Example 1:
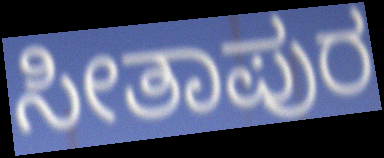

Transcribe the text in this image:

ಸೀತಾಪುರ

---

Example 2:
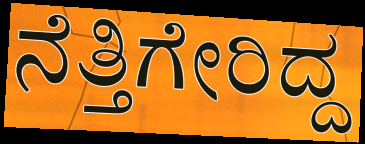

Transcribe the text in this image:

ನೆತ್ತಿಗೇರಿದ್ದ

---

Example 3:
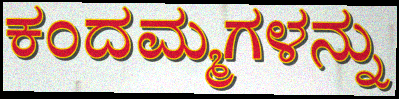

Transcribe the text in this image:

ಕಂದಮ್ಮಗಳನ್ನು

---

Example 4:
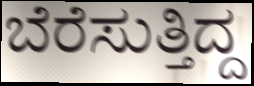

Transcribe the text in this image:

ಬೆರೆಸುತ್ತಿದ್ದ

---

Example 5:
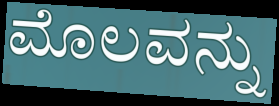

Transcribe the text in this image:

ಮೊಲವನ್ನು